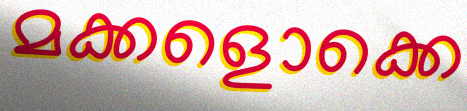
മക്കളൊക്കെ